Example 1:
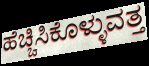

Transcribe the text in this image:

ಹೆಚ್ಚಿಸಿಕೊಳ್ಳುವತ್ತ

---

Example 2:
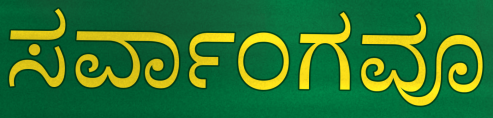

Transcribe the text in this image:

ಸರ್ವಾಂಗವೂ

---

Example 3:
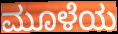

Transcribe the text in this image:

ಮೂಳೆಯ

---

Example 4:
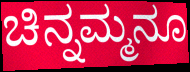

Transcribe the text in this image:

ಚಿನ್ನಮ್ಮನೂ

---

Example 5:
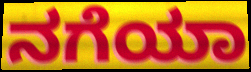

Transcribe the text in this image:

ನಗೆಯಾ